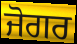
ਜੋਗਰ